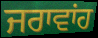
ਜਰਾਵਾਂਹ